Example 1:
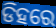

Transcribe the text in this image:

ଡିହରେ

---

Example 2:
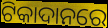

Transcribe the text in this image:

ଟିକାଦାନରେ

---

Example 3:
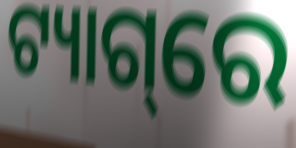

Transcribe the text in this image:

ଟ୍ୟାଗ୍‌ରେ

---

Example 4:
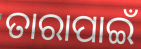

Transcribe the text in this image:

ତାରାପାଇଁ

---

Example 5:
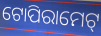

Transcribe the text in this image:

ଟୋପିରାମେଟ୍